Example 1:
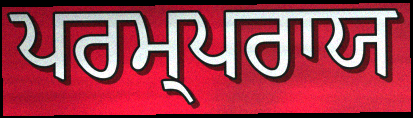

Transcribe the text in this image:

ਪਰਮ੍ਪਰਾਯ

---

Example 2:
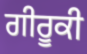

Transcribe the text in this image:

ਗੀਰੂਕੀ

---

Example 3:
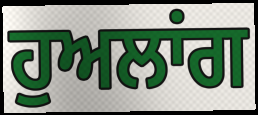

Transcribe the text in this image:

ਹੁਅਲਾਂਗ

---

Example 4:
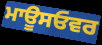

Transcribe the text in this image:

ਮਾਊਸਓਵਰ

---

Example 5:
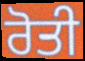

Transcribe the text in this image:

ਰੋਤੀ